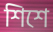
শিশে